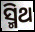
ସ୍ମିଥ